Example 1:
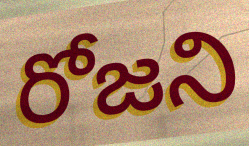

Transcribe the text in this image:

రోజని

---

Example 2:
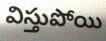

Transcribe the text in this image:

విస్తుపోయి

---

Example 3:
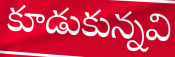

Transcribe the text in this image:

కూడుకున్నవి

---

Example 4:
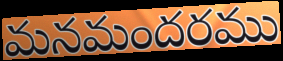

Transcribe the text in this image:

మనమందరము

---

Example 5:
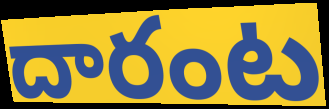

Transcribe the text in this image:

దారంట